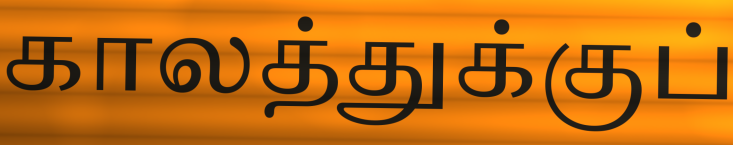
காலத்துக்குப்